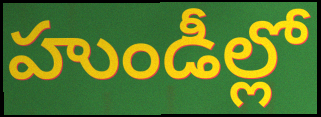
హుండీల్లో